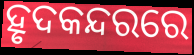
ହୃଦକନ୍ଦରରେ